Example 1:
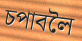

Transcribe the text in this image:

চপাবলৈ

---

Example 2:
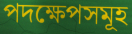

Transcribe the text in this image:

পদক্ষেপসমূহ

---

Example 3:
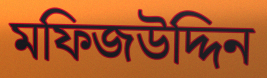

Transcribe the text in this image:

মফিজউদ্দিন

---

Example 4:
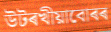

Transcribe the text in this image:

উটৰখীয়াবোৰৰ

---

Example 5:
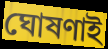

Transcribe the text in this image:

ঘোষণাই